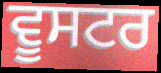
ਵੂਸਟਰ